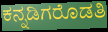
ಕನ್ನಡಿಗರೊಡತಿ